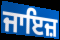
ਜਾਇਜ਼